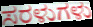
ಸರಳುಗಳು